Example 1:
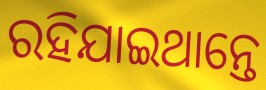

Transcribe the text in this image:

ରହିଯାଇଥାନ୍ତେ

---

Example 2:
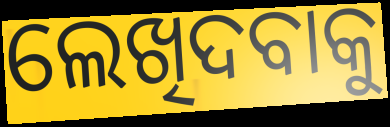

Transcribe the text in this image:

ଲେଖିଦବାକୁ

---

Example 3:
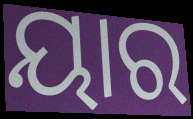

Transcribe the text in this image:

ୟାର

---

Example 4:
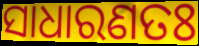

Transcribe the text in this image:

ସାଧାରଣତଃ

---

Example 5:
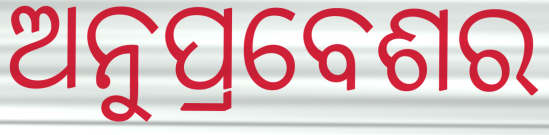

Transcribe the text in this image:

ଅନୁପ୍ରବେଶର